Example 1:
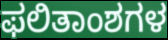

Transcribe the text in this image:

ಫಲಿತಾಂಶಗಳ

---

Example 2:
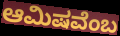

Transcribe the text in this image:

ಆಮಿಷವೆಂಬ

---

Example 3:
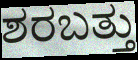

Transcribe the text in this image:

ಶರಬತ್ತು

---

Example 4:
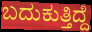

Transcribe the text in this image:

ಬದುಕುತ್ತಿದ್ದೆ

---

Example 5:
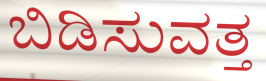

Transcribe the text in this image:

ಬಿಡಿಸುವತ್ತ